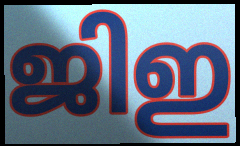
ജിഇ